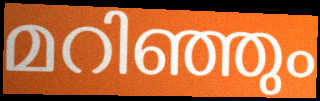
മറിഞ്ഞും